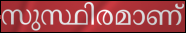
സുസ്ഥിരമാണ്